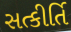
સત્કીર્તિ